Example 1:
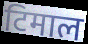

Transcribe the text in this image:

टिमाल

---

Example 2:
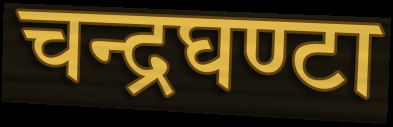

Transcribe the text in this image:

चन्द्रघण्टा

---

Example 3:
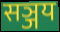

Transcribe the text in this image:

सञ्जय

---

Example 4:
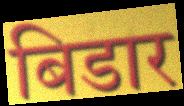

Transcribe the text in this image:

बिडार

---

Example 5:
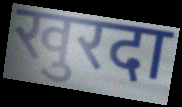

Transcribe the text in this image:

खुरदा